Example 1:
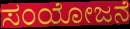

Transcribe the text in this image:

ಸಂಯೋಜನೆ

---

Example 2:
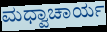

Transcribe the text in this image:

ಮಧ್ವಾಚಾರ್ಯ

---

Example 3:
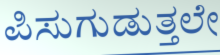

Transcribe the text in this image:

ಪಿಸುಗುಡುತ್ತಲೇ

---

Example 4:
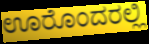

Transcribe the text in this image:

ಊರೊಂದರಲ್ಲಿ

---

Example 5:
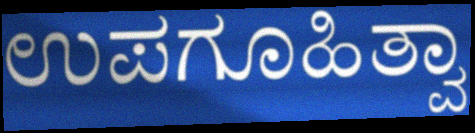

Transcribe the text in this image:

ಉಪಗೂಹಿತ್ವಾ